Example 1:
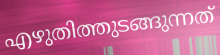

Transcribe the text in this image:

എഴുതിത്തുടങ്ങുന്നത്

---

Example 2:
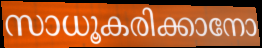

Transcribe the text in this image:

സാധൂകരിക്കാനോ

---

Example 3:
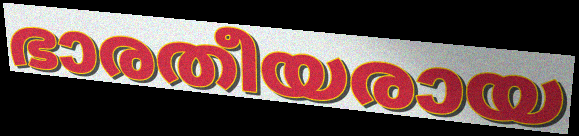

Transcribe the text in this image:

ഭാരതീയരായ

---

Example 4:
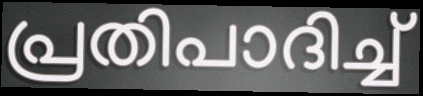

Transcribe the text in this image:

പ്രതിപാദിച്ച്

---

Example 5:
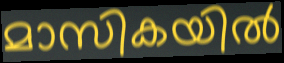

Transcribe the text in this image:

മാസികയിൽ